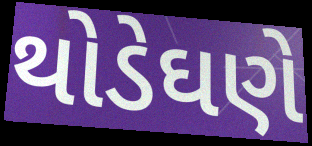
થોડેઘણે